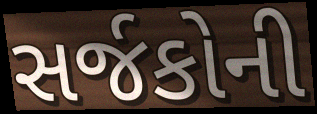
સર્જકોની